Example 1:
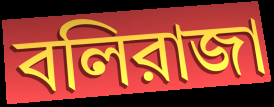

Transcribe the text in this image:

বলিরাজা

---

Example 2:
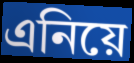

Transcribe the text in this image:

এনিয়ে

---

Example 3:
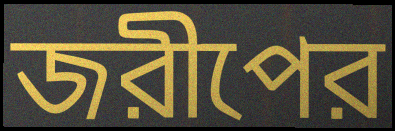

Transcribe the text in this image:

জরীপের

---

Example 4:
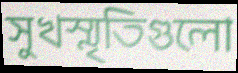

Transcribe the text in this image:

সুখস্মৃতিগুলো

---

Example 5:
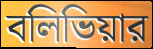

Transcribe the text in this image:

বলিভিয়ার